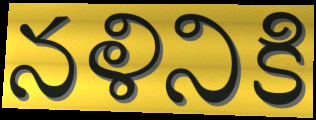
నళినికి